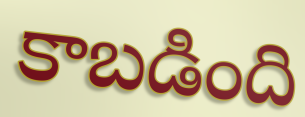
కాబడింది